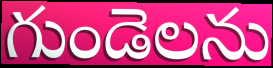
గుండెలను